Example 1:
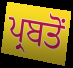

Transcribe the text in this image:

ਪ੍ਰਬਤੋਂ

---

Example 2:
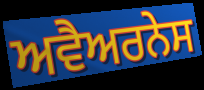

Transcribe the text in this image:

ਅਵੈਅਰਨੇਸ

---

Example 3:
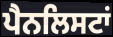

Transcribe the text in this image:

ਪੈਨਲਿਸਟਾਂ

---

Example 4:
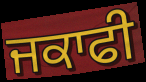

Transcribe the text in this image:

ਜਕਾਫੀ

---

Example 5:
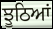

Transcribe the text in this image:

ਝੂਠਿਆਂ